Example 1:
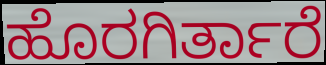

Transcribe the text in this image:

ಹೊರಗಿರ್ತಾರೆ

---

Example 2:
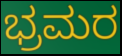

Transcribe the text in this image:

ಭ್ರಮರ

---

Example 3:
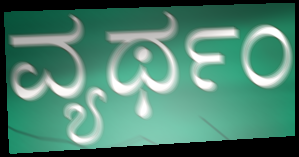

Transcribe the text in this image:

ವ್ಯರ್ಥಂ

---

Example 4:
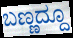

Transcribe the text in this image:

ಬಣ್ಣದ್ದೂ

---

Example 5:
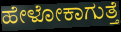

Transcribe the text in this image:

ಹೇಳೋಕಾಗುತ್ತೆ